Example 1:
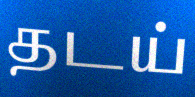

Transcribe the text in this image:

தடய்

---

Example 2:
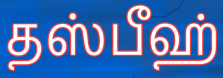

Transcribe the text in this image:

தஸ்பீஹ்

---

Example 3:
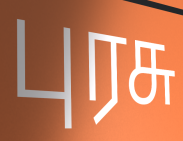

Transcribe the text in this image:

புரசு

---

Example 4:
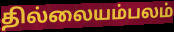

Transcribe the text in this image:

தில்லையம்பலம்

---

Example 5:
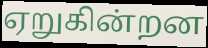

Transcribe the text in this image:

ஏறுகின்றன